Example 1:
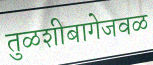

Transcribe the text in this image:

तुळशीबागेजवळ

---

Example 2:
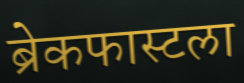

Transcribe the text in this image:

ब्रेकफास्टला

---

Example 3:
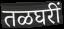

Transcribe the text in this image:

तळघरीं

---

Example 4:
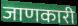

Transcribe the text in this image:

जाणकारी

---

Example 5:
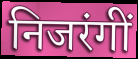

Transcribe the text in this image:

निजरंगीं